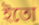
ইতো